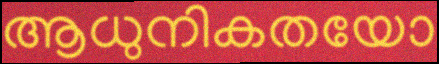
ആധുനികതയോ